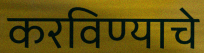
करविण्याचे